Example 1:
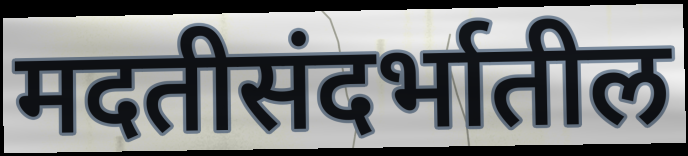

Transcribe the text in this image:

मदतीसंदर्भातील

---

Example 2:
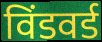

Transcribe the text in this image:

विंडवर्ड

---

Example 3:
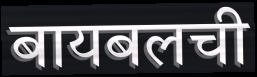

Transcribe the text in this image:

बायबलची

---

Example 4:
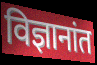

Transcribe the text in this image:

विज्ञानांत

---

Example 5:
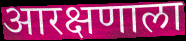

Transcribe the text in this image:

आरक्षणाला